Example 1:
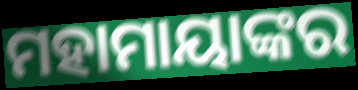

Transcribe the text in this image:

ମହାମାୟାଙ୍କର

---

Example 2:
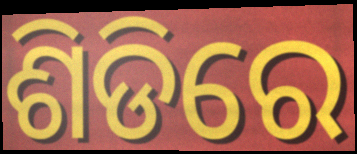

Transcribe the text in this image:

ଶିଡିରେ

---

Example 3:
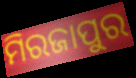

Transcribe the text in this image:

ମିରଜାପୁର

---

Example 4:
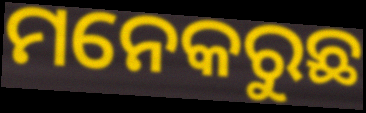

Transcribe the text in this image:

ମନେକରୁଛ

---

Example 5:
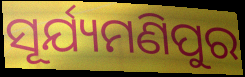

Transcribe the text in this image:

ସୂର୍ଯ୍ୟମଣିପୁର